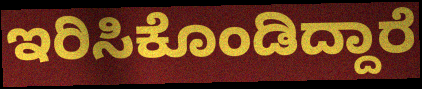
ಇರಿಸಿಕೊಂಡಿದ್ದಾರೆ